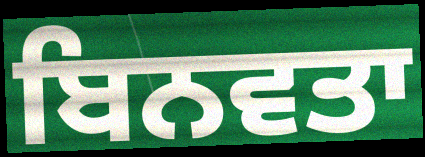
ਬਿਨਵਤਾ